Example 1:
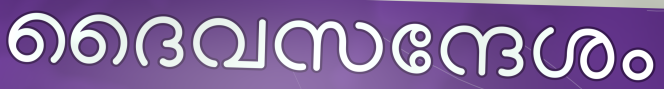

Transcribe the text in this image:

ദൈവസന്ദേശം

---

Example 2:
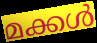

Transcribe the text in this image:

മക്കൾ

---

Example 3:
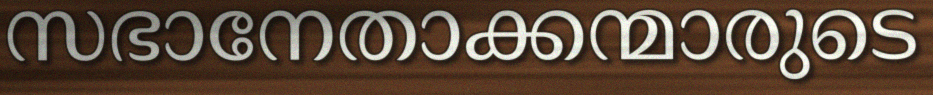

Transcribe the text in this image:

സഭാനേതാക്കന്മാരുടെ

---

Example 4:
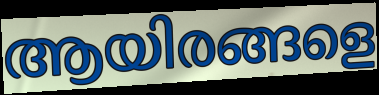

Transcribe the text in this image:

ആയിരങ്ങളെ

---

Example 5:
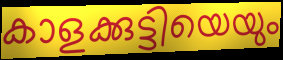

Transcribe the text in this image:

കാളക്കുട്ടിയെയും